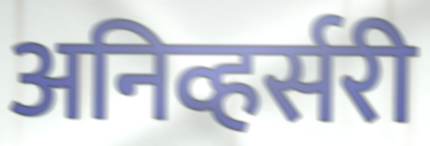
अनिव्हर्सरी